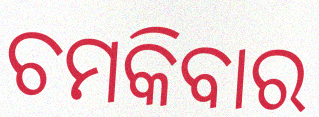
ଚମକିବାର